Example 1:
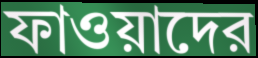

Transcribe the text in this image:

ফাওয়াদের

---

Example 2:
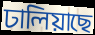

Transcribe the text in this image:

ঢালিয়াছে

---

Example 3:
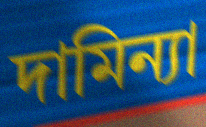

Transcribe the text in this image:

দামিন্যা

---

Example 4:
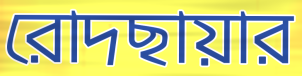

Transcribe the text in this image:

রোদছায়ার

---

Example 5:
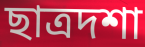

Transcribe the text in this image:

ছাত্রদশা